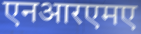
एनआरएमए